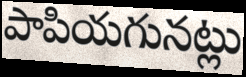
పాపియగునట్లు